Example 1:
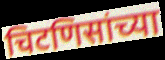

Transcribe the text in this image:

चिटणिसांच्या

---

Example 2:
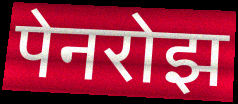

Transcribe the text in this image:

पेनरोझ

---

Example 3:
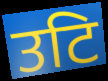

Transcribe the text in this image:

उटि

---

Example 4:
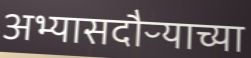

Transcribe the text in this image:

अभ्यासदौऱ्याच्या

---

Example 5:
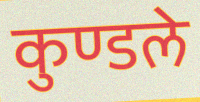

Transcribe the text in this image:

कुण्डले